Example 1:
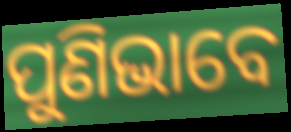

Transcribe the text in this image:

ପୁଣିଭାବେ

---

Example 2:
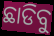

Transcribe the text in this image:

ଛାଡିବୁ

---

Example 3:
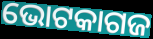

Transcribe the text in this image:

ଭୋଟକାଗଜ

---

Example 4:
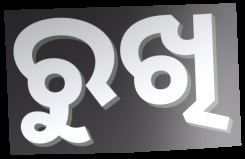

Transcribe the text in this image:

ରୁଖି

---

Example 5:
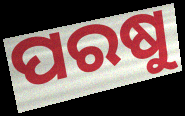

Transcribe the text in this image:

ପରଷୁ